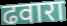
ढवारा